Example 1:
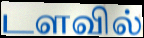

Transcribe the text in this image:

டளவில்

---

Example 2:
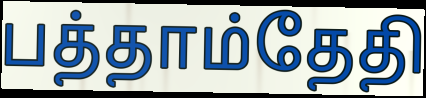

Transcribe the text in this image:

பத்தாம்தேதி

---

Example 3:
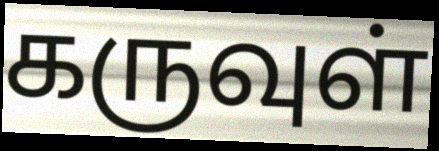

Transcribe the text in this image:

கருவுள்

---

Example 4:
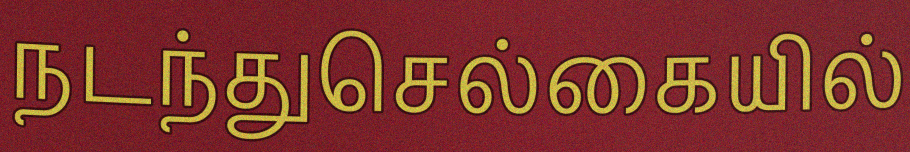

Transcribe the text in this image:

நடந்துசெல்கையில்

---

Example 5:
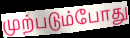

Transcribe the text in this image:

முற்படும்போது